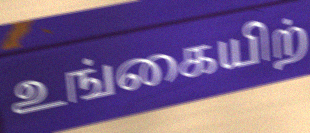
உங்கையிற்